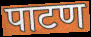
पाटण